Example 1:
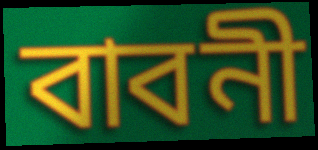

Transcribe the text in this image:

বাবনী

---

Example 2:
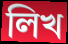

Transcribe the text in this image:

লিখ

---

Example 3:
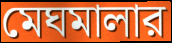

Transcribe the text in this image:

মেঘমালার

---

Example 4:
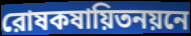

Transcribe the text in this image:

রোষকষায়িতনয়নে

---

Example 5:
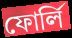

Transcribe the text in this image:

ফোর্লি